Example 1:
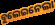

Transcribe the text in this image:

ବୁଲେଇନେଲା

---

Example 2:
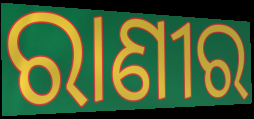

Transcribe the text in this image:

ରାଣୀର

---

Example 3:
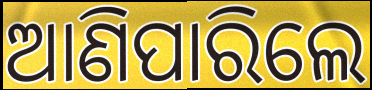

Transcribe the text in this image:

ଆଣିପାରିଲେ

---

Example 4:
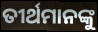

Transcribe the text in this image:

ତୀର୍ଥମାନଙ୍କୁ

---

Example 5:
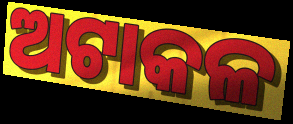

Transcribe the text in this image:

ଅଟାକଳ